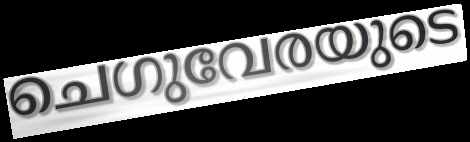
ചെഗുവേരയുടെ